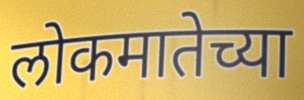
लोकमातेच्या